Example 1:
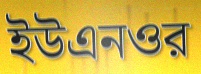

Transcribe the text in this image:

ইউএনওর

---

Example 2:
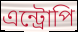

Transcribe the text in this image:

এন্ট্রোপি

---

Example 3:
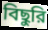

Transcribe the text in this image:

বিছুরি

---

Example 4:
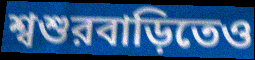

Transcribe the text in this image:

শ্বশুরবাড়িতেও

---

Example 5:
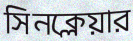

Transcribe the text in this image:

সিনক্লেয়ার